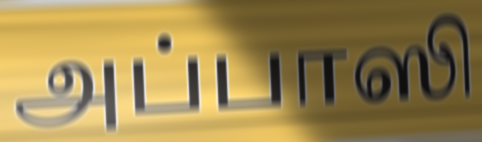
அப்பாஸி